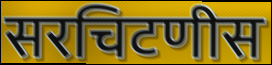
सरचिटणीस